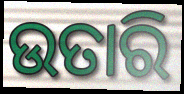
ଉତାରି